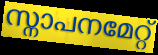
സ്നാപനമേറ്റ്